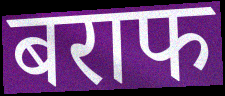
बराफ